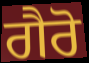
ਗੈਰੋ